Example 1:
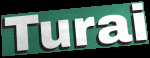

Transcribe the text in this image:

Turai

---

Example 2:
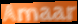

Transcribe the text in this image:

Amaar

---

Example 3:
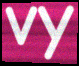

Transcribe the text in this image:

vy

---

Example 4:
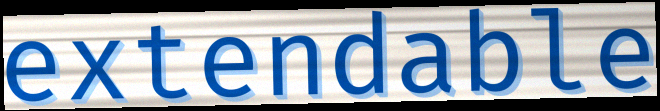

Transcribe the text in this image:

extendable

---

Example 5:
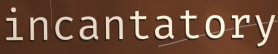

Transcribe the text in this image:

incantatory